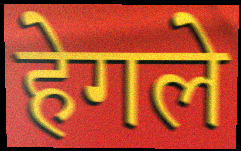
हेगले